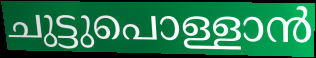
ചുട്ടുപൊള്ളാൻ